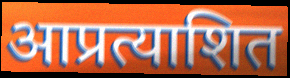
आप्रत्याशित